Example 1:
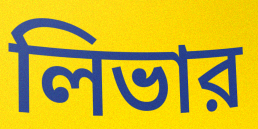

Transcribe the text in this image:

লিভার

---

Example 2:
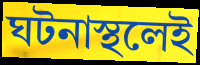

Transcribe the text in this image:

ঘটনাস্থলেই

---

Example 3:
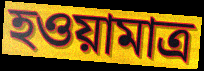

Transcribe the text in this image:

হওয়ামাত্র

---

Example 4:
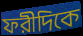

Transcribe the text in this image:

ফরীদিকে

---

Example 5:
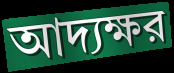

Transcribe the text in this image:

আদ্যক্ষর